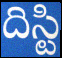
దిస్టి